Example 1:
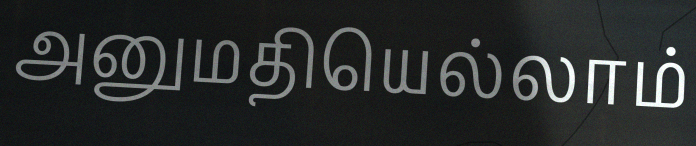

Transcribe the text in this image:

அனுமதியெல்லாம்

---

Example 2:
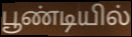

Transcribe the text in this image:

பூண்டியில்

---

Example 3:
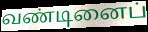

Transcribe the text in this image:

வண்டினைப்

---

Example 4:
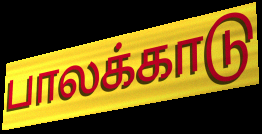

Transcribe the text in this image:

பாலக்காடு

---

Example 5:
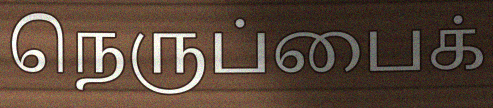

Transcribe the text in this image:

நெருப்பைக்